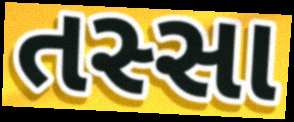
તસ્સા